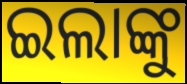
ଇଲାଙ୍କୁ